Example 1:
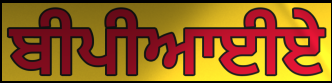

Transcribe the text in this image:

ਬੀਪੀਆਈਏ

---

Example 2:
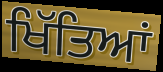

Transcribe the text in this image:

ਖਿੱਤਿਆਂ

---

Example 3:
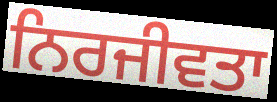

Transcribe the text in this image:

ਨਿਰਜੀਵਤਾ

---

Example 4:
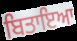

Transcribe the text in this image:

ਬਿਤਾਇਆ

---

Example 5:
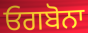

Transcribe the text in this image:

ਓਗਬੋਨਾ